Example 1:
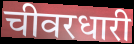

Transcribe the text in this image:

चीवरधारी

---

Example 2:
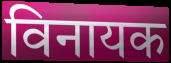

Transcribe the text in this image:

विनायक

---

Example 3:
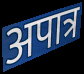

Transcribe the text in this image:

अपात्र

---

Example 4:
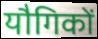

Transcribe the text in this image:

यौगिकों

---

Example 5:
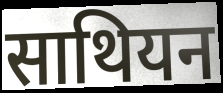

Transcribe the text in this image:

साथियन